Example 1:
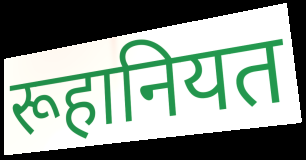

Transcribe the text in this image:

रूहानियत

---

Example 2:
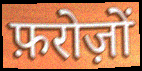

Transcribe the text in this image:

फ़रोज़ों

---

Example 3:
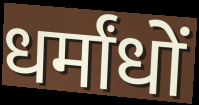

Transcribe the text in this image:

धर्मांधों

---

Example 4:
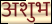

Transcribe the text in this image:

अशुभ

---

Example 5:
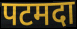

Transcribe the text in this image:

पटमदा